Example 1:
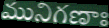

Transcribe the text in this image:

మునిగణాః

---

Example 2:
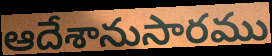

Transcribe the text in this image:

ఆదేశానుసారము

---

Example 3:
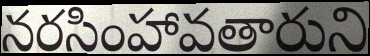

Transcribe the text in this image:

నరసింహావతారుని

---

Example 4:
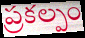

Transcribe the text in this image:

ప్రకల్పం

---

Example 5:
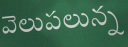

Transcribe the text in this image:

వెలుపలున్న